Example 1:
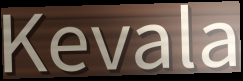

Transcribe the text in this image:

Kevala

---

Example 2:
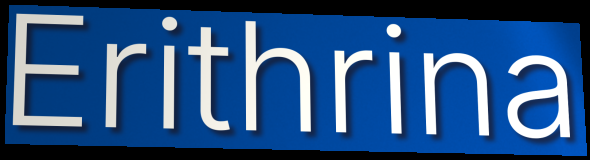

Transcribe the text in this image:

Erithrina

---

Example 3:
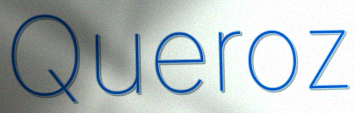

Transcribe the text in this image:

Queroz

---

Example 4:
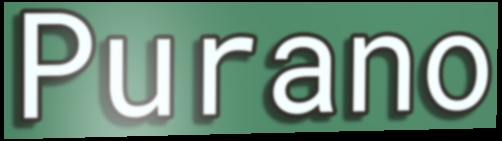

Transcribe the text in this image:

Purano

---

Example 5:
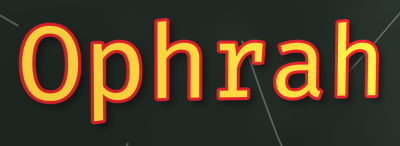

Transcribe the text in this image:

Ophrah